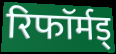
रिफॉर्मड्